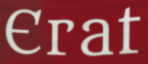
Erat